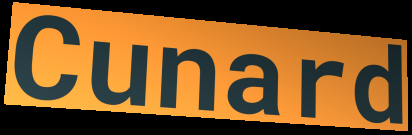
Cunard